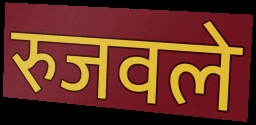
रुजवले